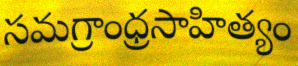
సమగ్రాంధ్రసాహిత్యం